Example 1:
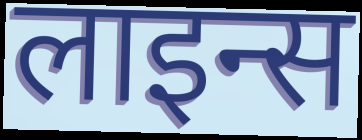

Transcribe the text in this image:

लाइन्स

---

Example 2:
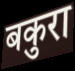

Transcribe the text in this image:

बकुरा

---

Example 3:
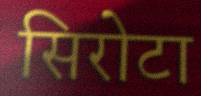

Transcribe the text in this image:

सिरोटा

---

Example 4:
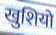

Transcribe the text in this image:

खुशियो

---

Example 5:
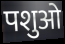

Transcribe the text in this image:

पशुओ